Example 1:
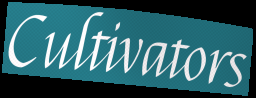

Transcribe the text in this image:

Cultivators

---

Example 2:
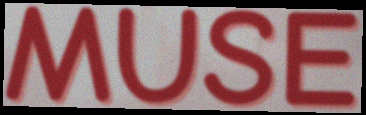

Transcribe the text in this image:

MUSE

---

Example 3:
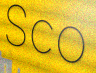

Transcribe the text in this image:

Sco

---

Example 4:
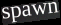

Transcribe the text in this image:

spawn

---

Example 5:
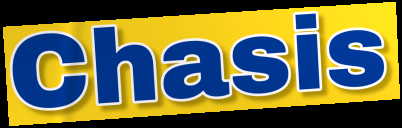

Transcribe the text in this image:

Chasis